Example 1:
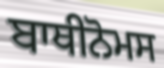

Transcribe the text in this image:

ਬਾਥੀਨੋਮਸ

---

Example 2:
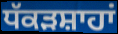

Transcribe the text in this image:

ਧੱਕੜਸ਼ਾਹਾਂ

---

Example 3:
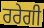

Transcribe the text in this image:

ਰਰੇਗੀ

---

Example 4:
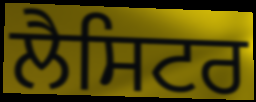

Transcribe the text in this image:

ਲੈਸਿਟਰ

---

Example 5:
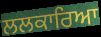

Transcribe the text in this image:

ਲਲਕਾਰਿਆ